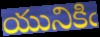
యునికిఁ